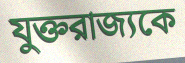
যুক্তরাজ্যকে